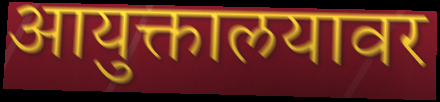
आयुक्तालयावर